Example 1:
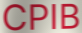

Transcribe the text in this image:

CPIB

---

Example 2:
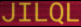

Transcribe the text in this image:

JILQL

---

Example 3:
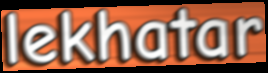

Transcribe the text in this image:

lekhatar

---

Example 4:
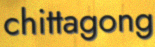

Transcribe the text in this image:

chittagong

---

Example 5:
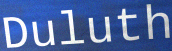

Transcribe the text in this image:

Duluth